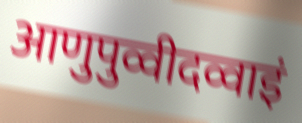
आणुपुव्वीदव्वाइं